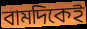
বামদিকেই